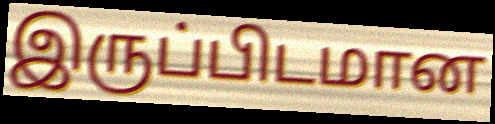
இருப்பிடமான